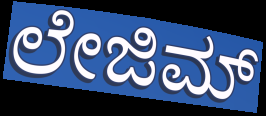
ಲೇಜಿಮ್